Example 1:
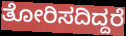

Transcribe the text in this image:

ತೋರಿಸದಿದ್ದರೆ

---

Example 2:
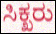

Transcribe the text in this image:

ಸಿಕ್ಖರು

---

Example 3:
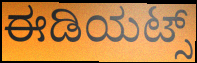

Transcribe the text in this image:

ಈಡಿಯಟ್ಸ್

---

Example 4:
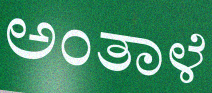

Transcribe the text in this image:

ಅಂತಾಳೆ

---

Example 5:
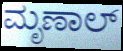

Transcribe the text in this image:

ಮೃಣಾಲ್